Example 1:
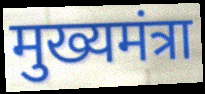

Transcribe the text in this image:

मुख्यमंत्रा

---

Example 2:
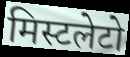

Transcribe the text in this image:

मिस्टलेटो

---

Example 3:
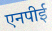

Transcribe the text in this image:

एनपीई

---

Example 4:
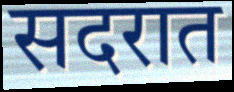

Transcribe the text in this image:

सदरात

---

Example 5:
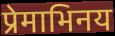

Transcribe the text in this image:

प्रेमाभिनय